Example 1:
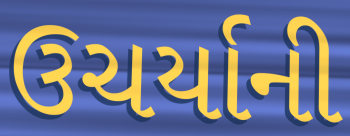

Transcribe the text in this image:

ઉચર્યાની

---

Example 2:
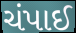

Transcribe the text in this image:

ચંપાઈ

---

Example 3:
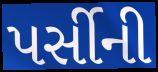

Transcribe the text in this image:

પર્સીની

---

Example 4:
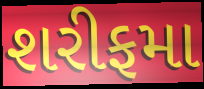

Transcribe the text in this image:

શરીફમા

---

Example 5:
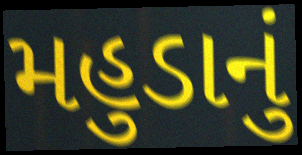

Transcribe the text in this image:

મહુડાનું